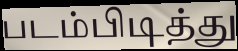
படம்பிடித்து